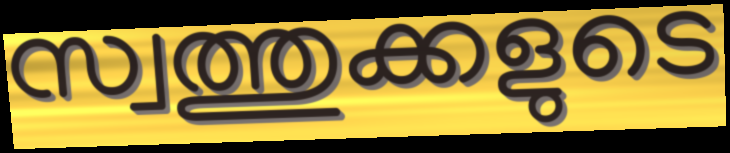
സ്വത്തുക്കളുടെ